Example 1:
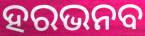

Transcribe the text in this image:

ହରଭନବ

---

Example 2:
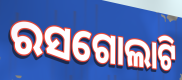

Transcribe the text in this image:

ରସଗୋଲାଟି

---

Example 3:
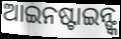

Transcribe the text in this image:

ଆଇନଷ୍ଟାଇନ୍ଙ୍କ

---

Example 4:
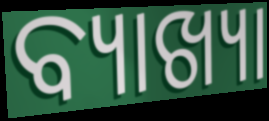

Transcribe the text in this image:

ବ୍ୟାଖ୍ୟା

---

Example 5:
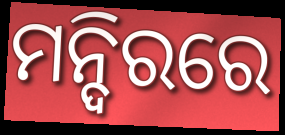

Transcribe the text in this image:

ମନ୍ଦିରରେ